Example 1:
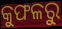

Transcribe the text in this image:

କୁଫଳରୁ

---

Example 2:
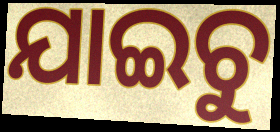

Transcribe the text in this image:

ଯାଇଚୁ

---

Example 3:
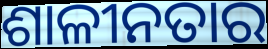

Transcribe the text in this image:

ଶାଳୀନତାର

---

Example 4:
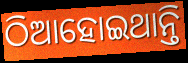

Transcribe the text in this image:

ଠିଆହୋଇଥାନ୍ତି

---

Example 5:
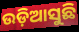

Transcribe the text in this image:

ଉଡ଼ିଆସୁଛି